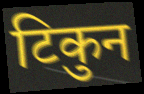
टिकुन